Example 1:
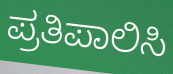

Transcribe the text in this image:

ಪ್ರತಿಪಾಲಿಸಿ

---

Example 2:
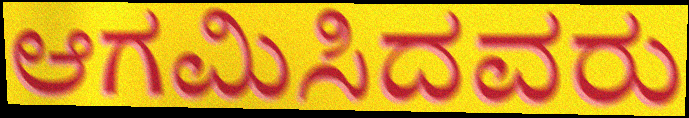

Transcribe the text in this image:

ಆಗಮಿಸಿದವರು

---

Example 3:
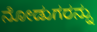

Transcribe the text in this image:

ನೋಡುಗರನ್ನು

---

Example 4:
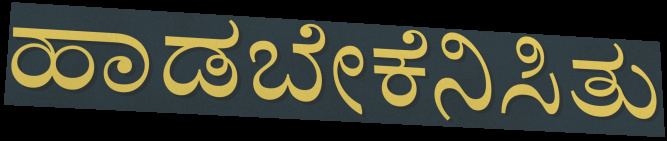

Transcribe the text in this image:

ಹಾಡಬೇಕೆನಿಸಿತು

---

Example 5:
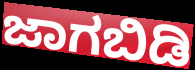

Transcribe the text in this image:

ಜಾಗಬಿಡಿ